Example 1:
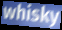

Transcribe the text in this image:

whisky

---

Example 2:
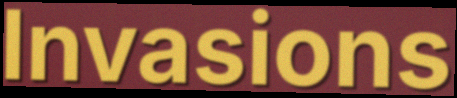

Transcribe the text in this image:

Invasions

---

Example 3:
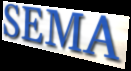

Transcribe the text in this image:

SEMA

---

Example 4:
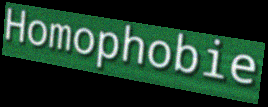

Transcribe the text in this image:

Homophobie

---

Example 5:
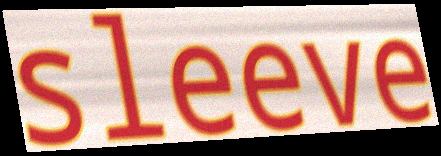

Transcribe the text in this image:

sleeve